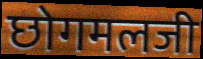
छोगमलजी